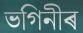
ভগিনীৰ